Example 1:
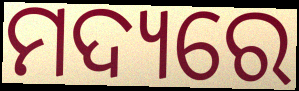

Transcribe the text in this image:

ମଦ୍ୟରେ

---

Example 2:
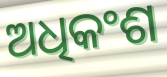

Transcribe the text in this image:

ଅଧିକଂଶ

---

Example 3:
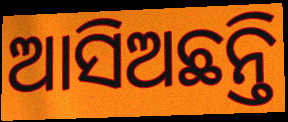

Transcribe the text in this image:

ଆସିଅଛନ୍ତି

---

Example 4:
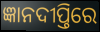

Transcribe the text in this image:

ଜ୍ଞାନଦୀପ୍ତିରେ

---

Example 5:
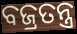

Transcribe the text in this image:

ବଜ୍ରତନ୍ତ୍ର